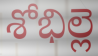
శోభిల్లె